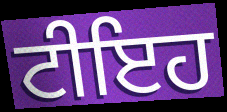
ਟੀਇਹ